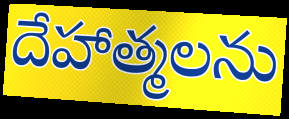
దేహాత్మలను